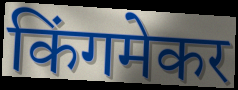
किंगमेकर